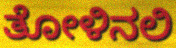
ತೋಳಿನಲಿ